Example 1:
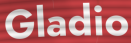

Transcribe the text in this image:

Gladio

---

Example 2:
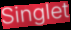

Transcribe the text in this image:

Singlet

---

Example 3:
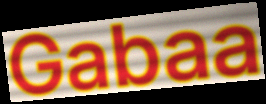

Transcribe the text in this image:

Gabaa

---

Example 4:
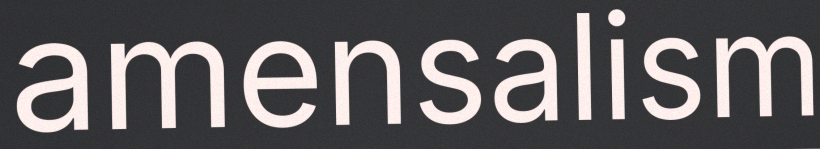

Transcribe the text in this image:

amensalism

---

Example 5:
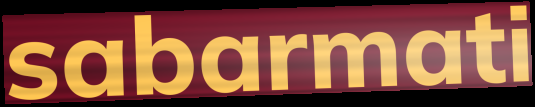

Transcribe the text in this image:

sabarmati